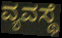
ವ್ಯವಸ್ಥೆ